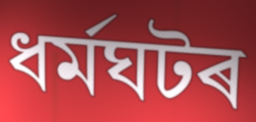
ধৰ্মঘটৰ